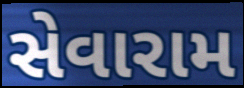
સેવારામ